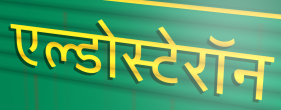
एल्डोस्टेरॉन